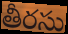
తీరసు